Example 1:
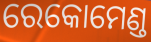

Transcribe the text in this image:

ରେକୋମେଣ୍ଡ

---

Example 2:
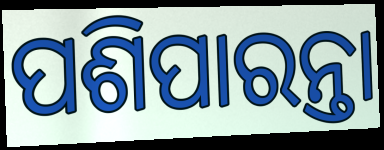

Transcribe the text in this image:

ପଶିପାରନ୍ତା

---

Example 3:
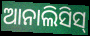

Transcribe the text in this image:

ଆନାଲିସିସ୍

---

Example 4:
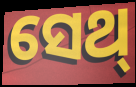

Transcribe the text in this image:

ସେଥ୍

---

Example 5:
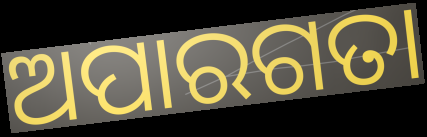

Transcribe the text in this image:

ଅପାରଗତା